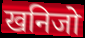
खनिजो